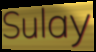
Sulay